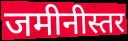
जमीनीस्तर